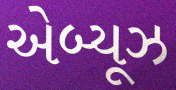
એબ્યૂઝ